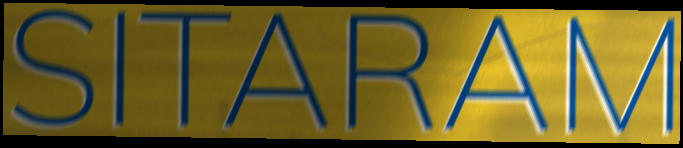
SITARAM